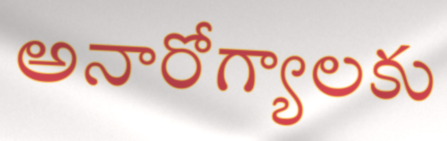
అనారోగ్యాలకు